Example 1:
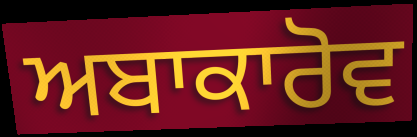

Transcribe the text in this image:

ਅਬਾਕਾਰੋਵ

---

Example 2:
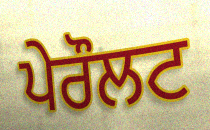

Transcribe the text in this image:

ਪੇਰੌਲਟ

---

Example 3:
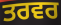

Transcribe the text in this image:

ਤਰਵਰ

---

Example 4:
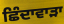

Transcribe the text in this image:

ਛਿੰਦਾਵਾੜਾ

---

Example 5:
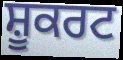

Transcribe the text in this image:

ਸ਼ੂਕਰਟ